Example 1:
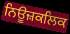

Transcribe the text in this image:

ਨਿਊਜ਼ਕਲਿਕ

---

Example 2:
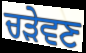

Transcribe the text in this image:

ਚੜੇਵਣ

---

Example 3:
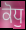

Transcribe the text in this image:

ਕੋਧੁ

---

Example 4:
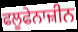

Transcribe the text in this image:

ਫਲੂਫੇਨਾਜ਼ੀਨ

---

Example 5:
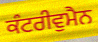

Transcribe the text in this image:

ਕੰਟਰੀਵੁਮੈਨ